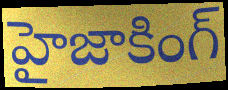
హైజాకింగ్